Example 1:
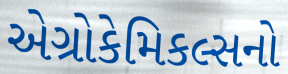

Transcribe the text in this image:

એગ્રોકેમિકલ્સનો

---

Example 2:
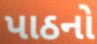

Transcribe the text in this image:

પાઠનો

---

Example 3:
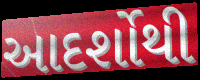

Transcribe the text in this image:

આદર્શોથી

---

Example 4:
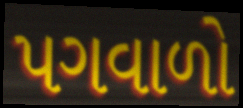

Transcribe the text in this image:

પગવાળો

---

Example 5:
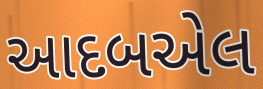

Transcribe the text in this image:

આદબએલ